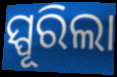
ସ୍ପୂରିଲା